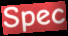
Spec